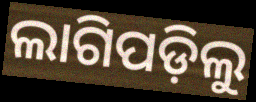
ଲାଗିପଡ଼ିଲୁ